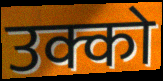
उक्को